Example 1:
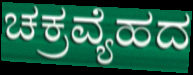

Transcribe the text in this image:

ಚಕ್ರವ್ಯೆಹದ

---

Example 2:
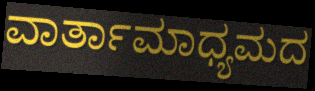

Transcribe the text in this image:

ವಾರ್ತಾಮಾಧ್ಯಮದ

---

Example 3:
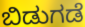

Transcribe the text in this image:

ಬಿಡುಗಡೆ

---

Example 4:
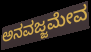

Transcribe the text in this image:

ಅನವಜ್ಜಮೇವ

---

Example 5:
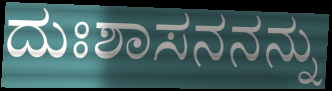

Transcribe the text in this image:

ದುಃಶಾಸನನನ್ನು